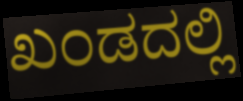
ಖಂಡದಲ್ಲಿ